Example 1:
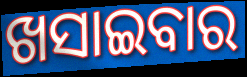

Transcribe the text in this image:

ଖସାଇବାର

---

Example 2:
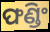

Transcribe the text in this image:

ଫଣ୍ଡିଂ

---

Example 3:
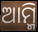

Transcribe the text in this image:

ଆମ୍ମି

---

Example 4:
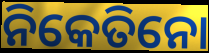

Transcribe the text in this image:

ନିକେତିନୋ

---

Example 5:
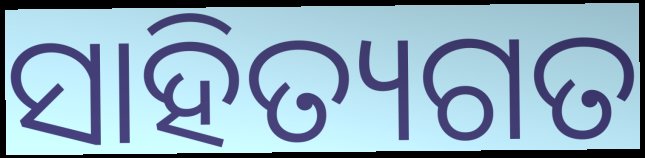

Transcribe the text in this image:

ସାହିତ୍ୟଗତ